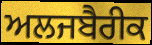
ਅਲਜਬੈਰੀਕ